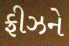
ફ્રીઝને